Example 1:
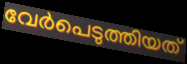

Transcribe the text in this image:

വേർപെടുത്തിയത്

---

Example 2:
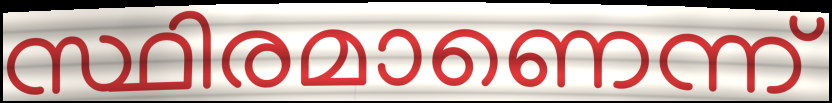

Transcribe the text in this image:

സ്ഥിരമാണെന്ന്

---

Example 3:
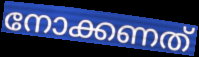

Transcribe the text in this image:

നോക്കണത്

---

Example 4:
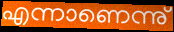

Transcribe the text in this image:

എന്നാണെന്നു്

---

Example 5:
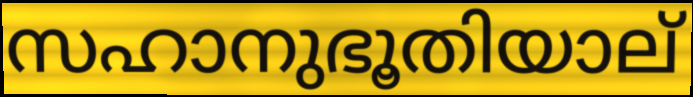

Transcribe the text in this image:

സഹാനുഭൂതിയാല്